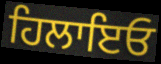
ਹਿਲਾਇਓ